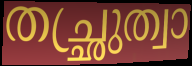
തച്ഛ്രുത്വാ